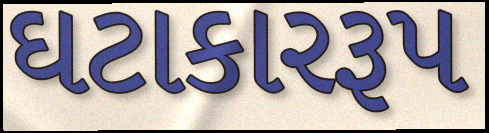
ઘટાકારરૂપ